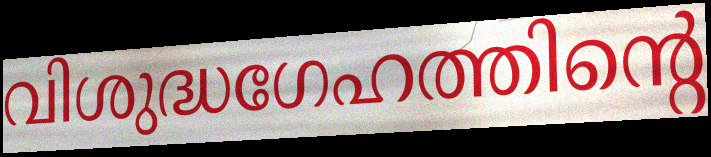
വിശുദ്ധഗേഹത്തിന്റെ